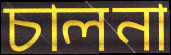
চালনা